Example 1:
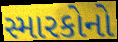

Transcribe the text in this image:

સ્મારકોનો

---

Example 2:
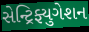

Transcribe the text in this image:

સેન્ટ્રિફ્યુગેશન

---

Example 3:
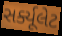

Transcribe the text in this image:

સર્ક્યૂલેટ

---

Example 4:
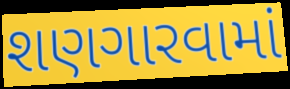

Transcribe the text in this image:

શણગારવામાં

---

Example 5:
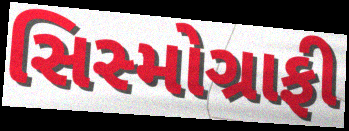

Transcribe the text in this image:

સિસ્મોગ્રાફી